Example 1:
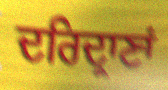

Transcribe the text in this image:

ਦਰਿਦ੍ਰਾਣਾਂ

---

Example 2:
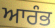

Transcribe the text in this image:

ਆਰੰਭ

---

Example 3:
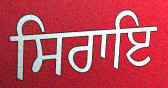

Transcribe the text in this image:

ਸਿਰਾਇ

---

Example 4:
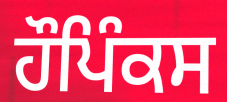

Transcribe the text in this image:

ਹੌਪਿੰਕਸ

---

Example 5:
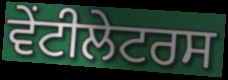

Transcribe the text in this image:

ਵੇਂਟੀਲੇਟਰਸ